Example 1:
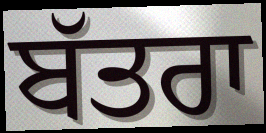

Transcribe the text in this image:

ਬੱਤਰਾ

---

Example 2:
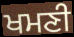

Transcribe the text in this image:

ਖਮਣੀ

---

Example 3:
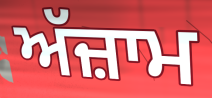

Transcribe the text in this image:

ਅੱਜ਼ਾਮ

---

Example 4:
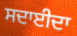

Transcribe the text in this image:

ਸਦਾਈਦਾ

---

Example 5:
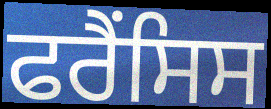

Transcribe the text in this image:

ਫਰੈਂਸਿਸ